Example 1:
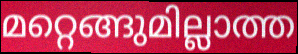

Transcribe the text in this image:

മറ്റെങ്ങുമില്ലാത്ത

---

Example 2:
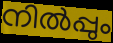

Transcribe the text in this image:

നിൽപ്പും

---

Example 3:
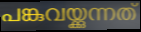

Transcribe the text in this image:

പങ്കുവയ്ക്കുന്നത്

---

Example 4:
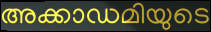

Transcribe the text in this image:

അക്കാഡമിയുടെ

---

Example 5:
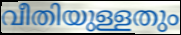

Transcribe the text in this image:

വീതിയുള്ളതും